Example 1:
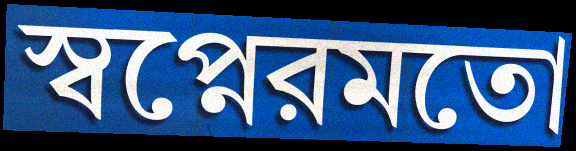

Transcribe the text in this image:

স্বপ্নেরমতো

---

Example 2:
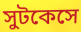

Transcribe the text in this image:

সুটকেসে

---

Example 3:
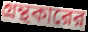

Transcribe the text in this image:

গ্রন্থকারের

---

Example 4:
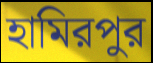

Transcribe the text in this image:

হামিরপুর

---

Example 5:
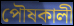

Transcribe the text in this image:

পৌষকালী